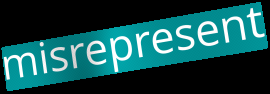
misrepresent